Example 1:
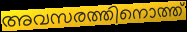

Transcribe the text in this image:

അവസരത്തിനൊത്ത്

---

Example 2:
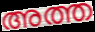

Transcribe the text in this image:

അത്ത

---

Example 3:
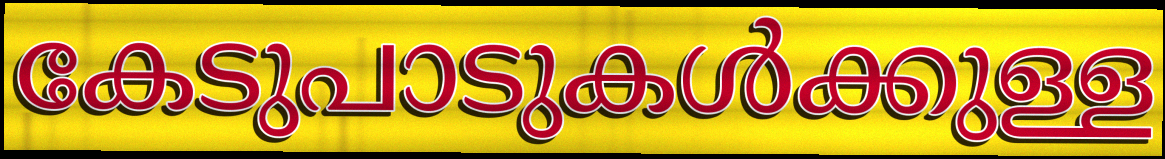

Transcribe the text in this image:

കേടുപാടുകൾക്കുള്ള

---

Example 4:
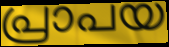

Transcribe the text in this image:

പ്രാപയ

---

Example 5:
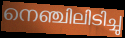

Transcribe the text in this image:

നെഞ്ചിലിടിച്ചു